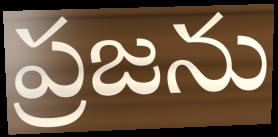
ప్రజను